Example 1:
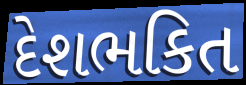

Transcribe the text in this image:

દેશભકિત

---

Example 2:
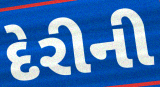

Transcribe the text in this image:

દેરીની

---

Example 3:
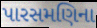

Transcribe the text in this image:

પારસમણિના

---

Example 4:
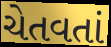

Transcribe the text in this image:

ચેતવતાં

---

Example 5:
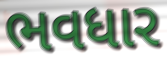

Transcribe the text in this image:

ભવધાર